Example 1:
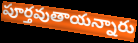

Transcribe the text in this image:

పూర్తవుతాయన్నారు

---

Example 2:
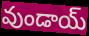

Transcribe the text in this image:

వుండాయ్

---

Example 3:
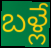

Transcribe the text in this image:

బళ్లే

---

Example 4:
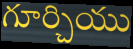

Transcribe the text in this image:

గూర్చియు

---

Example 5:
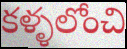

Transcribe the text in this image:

కళ్ళలోంచి